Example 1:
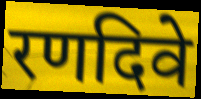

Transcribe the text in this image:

रणदिवे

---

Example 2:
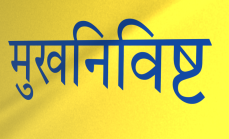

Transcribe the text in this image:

मुखनिविष्ट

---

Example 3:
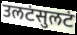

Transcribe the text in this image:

उलटंसुलटं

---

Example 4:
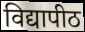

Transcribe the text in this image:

विद्यापीठ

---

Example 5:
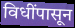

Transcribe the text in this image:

विधींपासून